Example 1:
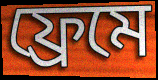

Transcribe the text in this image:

ফ্রেমে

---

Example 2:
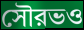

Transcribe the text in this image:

সৌরভও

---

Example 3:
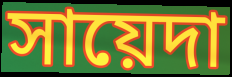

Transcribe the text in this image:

সায়েদা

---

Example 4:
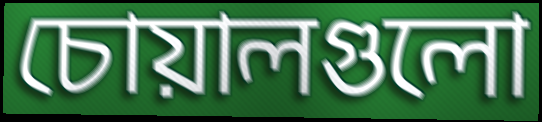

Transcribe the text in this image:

চোয়ালগুলো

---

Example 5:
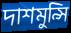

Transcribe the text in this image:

দাশমুন্সি